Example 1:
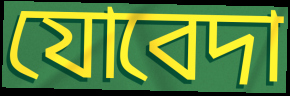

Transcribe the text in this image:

যোবেদা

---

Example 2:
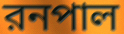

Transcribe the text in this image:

রনপাল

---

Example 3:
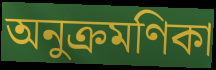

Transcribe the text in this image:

অনুক্রমণিকা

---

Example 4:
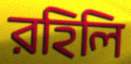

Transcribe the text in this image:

রহিলি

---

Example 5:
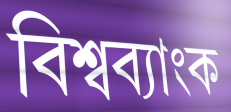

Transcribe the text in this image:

বিশ্বব্যাংক